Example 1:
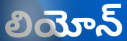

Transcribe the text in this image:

లియోన్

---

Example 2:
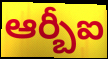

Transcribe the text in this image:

ఆర్బీఐ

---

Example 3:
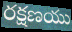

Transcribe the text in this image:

రక్షణయు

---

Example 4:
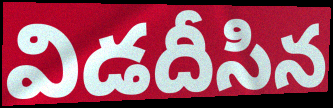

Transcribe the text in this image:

విడదీసిన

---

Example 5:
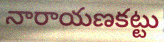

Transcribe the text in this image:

నారాయణకట్టు